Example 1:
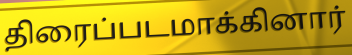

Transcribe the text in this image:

திரைப்படமாக்கினார்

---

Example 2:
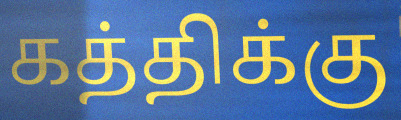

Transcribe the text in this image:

கத்திக்கு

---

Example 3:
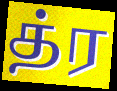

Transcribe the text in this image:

த்ர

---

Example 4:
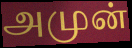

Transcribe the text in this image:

அமுன்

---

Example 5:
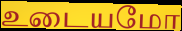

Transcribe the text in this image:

உடையமோ